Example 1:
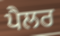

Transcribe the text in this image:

ਪੈਲਰ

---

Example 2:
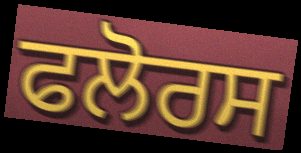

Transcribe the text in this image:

ਫਲੋਰਸ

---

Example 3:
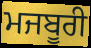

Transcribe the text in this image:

ਮਜਬੂਰੀ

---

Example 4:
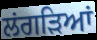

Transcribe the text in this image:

ਲਂਗੜਿਆਂ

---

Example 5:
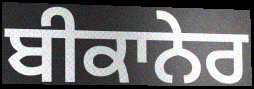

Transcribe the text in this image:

ਬੀਕਾਨੇਰ